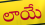
లాయే